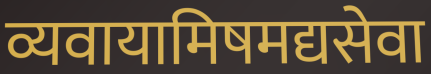
व्यवायामिषमद्यसेवा